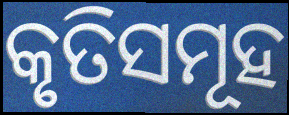
କୃତିସମୂହ